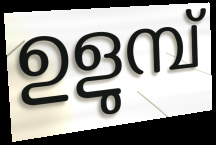
ഉളുമ്പ്